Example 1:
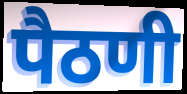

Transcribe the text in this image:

पैठणी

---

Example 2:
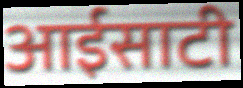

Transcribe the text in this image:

आईसाटी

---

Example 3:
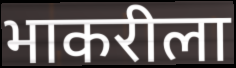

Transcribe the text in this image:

भाकरीला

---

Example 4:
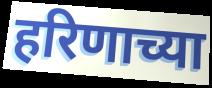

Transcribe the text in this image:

हरिणाच्या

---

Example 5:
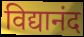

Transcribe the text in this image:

विद्यानंद